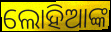
ଲୋହିଆଙ୍କ